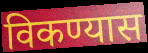
विकण्यास